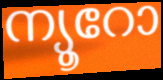
ന്യൂറോ